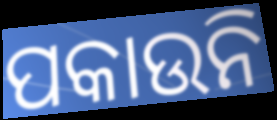
ପକାଉନି